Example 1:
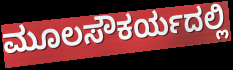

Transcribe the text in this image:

ಮೂಲಸೌಕರ್ಯದಲ್ಲಿ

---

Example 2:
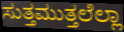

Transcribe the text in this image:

ಸುತ್ತಮುತ್ತಲೆಲ್ಲಾ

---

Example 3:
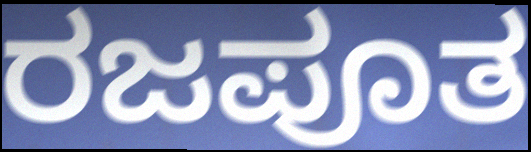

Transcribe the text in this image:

ರಜಪೂತ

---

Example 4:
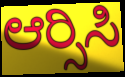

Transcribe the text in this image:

ಆರ್‍ಸಿಸಿ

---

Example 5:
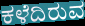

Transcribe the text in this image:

ಕಳೆದಿರುವ